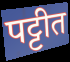
पट्टीत